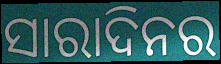
ସାରାଦିନର